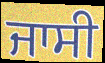
ਜਾਸੀ